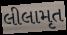
લીલામૃત